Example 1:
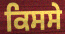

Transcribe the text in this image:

ਕਿਸਸੇ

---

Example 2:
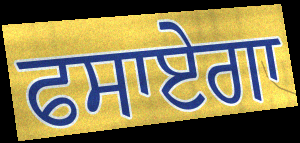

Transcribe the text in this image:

ਫਸਾਏਗਾ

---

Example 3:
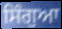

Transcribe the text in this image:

ਸਿੰਗੁਆ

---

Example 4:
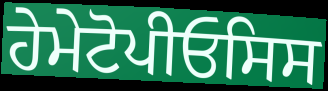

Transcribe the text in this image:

ਹੇਮੇਟੋਪੀਓਸਿਸ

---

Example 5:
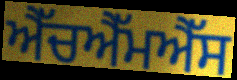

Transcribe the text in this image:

ਐੱਚਐੱਮਐੱਸ